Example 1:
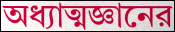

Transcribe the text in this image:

অধ্যাত্মজ্ঞানের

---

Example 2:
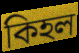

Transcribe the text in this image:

কিহল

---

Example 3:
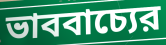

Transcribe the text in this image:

ভাববাচ্যের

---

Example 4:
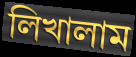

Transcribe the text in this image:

লিখালাম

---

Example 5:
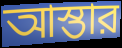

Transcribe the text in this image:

আস্তার